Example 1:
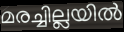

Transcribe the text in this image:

മരച്ചില്ലയിൽ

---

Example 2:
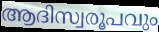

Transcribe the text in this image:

ആദിസ്വരൂപവും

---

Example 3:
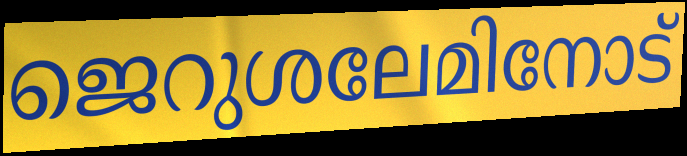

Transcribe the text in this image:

ജെറുശലേമിനോട്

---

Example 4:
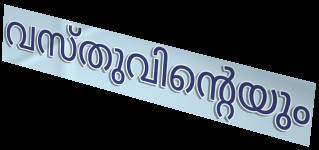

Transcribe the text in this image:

വസ്തുവിന്റെയും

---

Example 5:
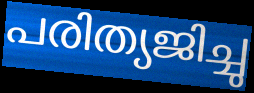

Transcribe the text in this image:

പരിത്യജിച്ചു